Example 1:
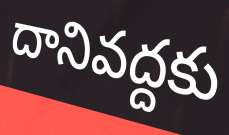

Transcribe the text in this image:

దానివద్దకు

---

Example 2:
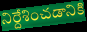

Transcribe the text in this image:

నిర్దేశించడానికి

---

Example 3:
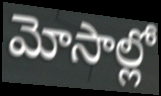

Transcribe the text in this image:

మోసాల్లో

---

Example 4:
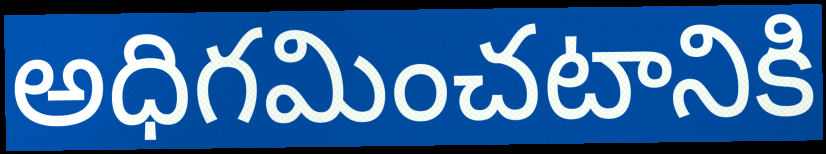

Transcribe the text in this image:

అధిగమించటానికి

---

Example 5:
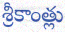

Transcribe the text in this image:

శ్రీకాంత్లు